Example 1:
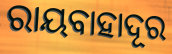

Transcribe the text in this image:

ରାୟବାହାଦୂର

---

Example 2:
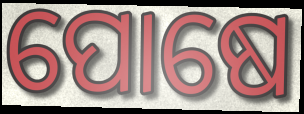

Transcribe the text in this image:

ପୋଷେ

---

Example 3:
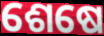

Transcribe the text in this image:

ଶେଷେ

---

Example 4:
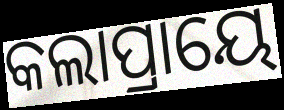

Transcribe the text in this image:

କଲାପ୍ରାୟେ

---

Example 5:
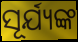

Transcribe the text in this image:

ସୂର୍ଯ୍ୟଙ୍କ